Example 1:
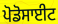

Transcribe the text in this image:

ਪੋਡੋਸਾਈਟ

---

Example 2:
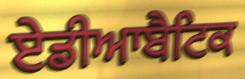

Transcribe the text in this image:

ਏਡੀਆਬੈਟਿਕ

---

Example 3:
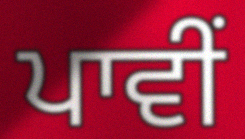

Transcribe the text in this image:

ਪਾਵੀਂ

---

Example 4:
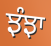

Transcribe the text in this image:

ਝੰਝਾ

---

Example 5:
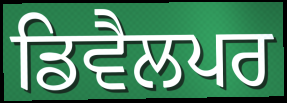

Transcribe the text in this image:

ਡਿਵੈਲਪਰ